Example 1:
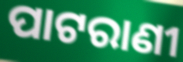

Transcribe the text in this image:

ପାଟରାଣୀ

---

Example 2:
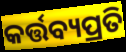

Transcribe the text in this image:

କର୍ତ୍ତବ୍ୟପ୍ରତି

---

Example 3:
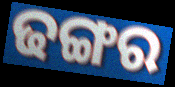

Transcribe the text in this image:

ଢଙ୍ଗର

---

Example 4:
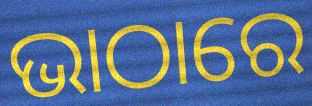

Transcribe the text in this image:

ଭାଠାରେ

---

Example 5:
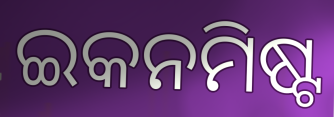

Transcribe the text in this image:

ଇକନମିଷ୍ଟ